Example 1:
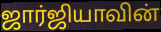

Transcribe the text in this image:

ஜார்ஜியாவின்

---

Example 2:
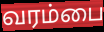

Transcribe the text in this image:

வரம்பை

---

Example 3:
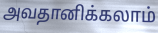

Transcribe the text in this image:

அவதானிக்கலாம்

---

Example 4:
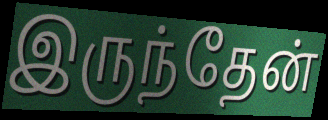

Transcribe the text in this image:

இருந்தேன்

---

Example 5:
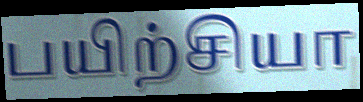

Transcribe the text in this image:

பயிற்சியா